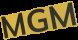
MGM